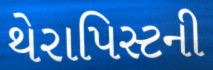
થેરાપિસ્ટની